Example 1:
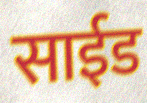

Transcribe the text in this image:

साईड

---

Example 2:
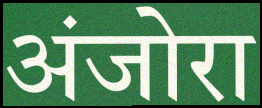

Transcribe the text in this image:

अंजोरा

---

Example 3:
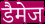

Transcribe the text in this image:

डैमेज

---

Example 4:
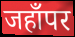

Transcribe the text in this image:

जहाँपर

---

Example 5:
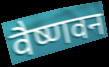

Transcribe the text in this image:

वैष्णवन